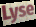
Lyse